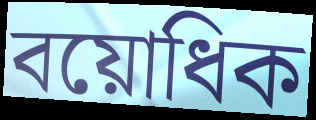
বয়োধিক